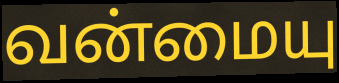
வன்மையு